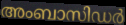
അംബാസിഡർ